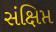
સંક્ષિપ્ત